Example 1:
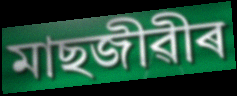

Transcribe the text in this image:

মাছজীৱীৰ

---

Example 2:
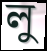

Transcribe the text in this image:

লু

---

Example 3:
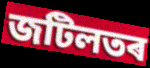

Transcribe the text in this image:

জটিলতৰ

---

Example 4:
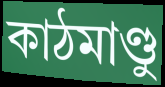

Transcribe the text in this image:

কাঠমাণ্ডু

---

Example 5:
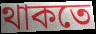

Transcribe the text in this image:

থাকতে